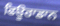
ਫਿਊਰਾਡਾਨ